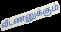
வீடணனுக்கும்